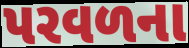
પરવળના